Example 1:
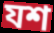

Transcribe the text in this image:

যশ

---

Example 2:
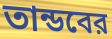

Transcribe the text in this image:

তান্ডবের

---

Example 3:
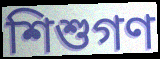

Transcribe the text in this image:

শিশুগণ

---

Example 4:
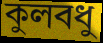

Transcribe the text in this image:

কুলবধু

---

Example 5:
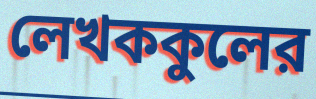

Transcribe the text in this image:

লেখককুলের